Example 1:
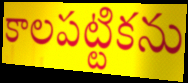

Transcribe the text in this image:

కాలపట్టికను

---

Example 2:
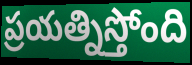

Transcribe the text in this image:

ప్రయత్నిస్తోంది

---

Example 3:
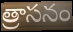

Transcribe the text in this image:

త్రాసనం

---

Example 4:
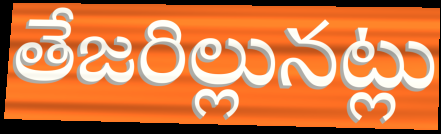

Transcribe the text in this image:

తేజరిల్లునట్లు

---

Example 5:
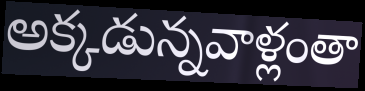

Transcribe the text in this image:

అక్కడున్నవాళ్లంతా